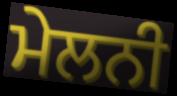
ਮੇਲਨੀ